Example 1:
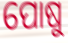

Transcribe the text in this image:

ପୋଷୁ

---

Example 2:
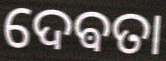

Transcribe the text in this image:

ଦେଵତା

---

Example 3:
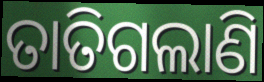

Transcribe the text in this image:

ତାତିଗଲାଣି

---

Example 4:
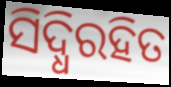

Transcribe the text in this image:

ସିଦ୍ଧିରହିତ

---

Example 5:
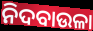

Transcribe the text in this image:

ନିଦବାଉଳା